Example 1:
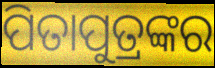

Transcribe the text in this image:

ପିତାପୁତ୍ରଙ୍କର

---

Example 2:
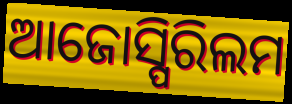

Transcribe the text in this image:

ଆଜୋସ୍ପିରିଲମ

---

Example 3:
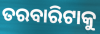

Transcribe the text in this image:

ତରବାରିଟାକୁ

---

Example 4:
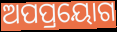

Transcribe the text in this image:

ଅପପ୍ରୟୋଗ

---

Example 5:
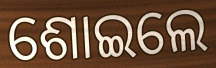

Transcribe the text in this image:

ଶୋଇଲେ